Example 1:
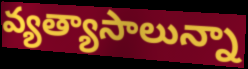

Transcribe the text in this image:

వ్యత్యాసాలున్నా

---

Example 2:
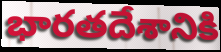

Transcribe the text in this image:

భారతదేశానికి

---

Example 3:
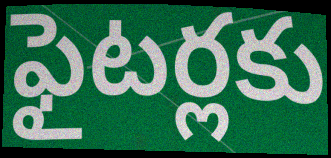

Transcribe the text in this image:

ఫైటర్లకు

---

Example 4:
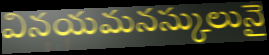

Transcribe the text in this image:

వినయమనస్కులునై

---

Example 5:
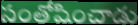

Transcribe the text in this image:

సంతోషించాడు